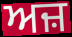
ਅਜ਼